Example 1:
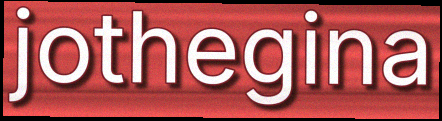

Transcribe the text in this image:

jothegina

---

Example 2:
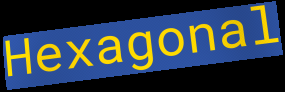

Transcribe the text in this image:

Hexagonal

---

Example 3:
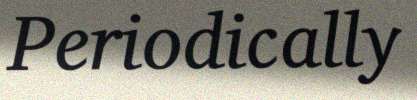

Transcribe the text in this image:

Periodically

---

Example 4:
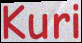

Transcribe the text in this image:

Kuri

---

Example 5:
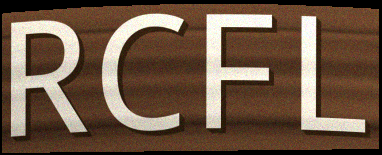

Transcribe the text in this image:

RCFL